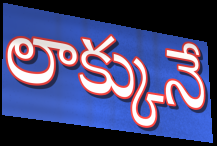
లాక్కునే